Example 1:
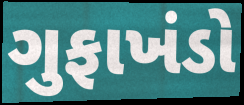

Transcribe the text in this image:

ગુફાખંડો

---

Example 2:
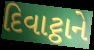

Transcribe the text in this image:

દિવાટ્ઠાને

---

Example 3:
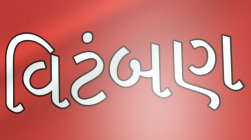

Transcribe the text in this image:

વિટંબણ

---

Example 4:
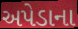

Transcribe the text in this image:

અપેડાના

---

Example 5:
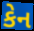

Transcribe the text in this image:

કેન